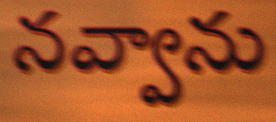
నవ్వాను